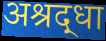
अश्रद्धा